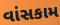
વાંસકામ